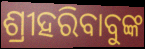
ଶ୍ରୀହରିବାବୁଙ୍କ